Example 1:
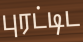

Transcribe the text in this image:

புரட்டிட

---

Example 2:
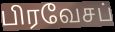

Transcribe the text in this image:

பிரவேசப்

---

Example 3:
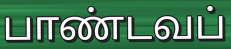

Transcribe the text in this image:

பாண்டவப்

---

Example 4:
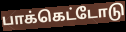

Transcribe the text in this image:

பாக்கெட்டோடு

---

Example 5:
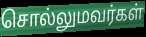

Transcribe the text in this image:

சொல்லுமவர்கள்